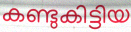
കണ്ടുകിട്ടിയ